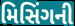
મિસિંગની